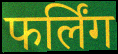
फर्लिंग